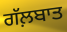
ਗੱਲ਼ਬਾਤ